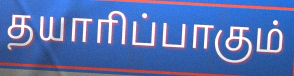
தயாரிப்பாகும்